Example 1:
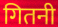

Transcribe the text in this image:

गितनी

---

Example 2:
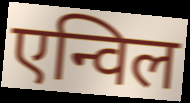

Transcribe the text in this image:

एन्विल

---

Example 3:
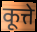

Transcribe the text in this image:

कूत्ते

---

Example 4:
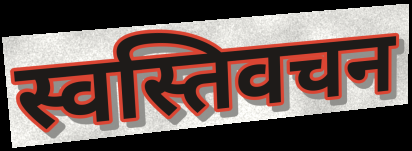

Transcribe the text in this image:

स्वस्तिवचन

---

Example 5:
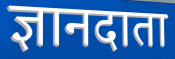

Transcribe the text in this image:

ज्ञानदाता